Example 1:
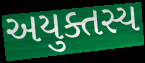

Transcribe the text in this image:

અયુક્તસ્ય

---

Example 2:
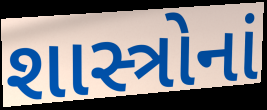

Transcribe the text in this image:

શાસ્ત્રોનાં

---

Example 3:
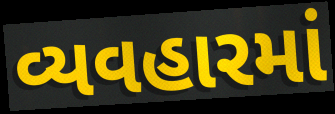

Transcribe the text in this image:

વ્યવહારમાં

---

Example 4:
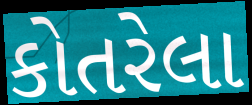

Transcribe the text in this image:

કોતરેલા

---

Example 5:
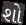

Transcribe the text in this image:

શો